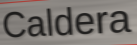
Caldera